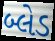
બ્લેડ